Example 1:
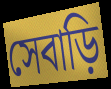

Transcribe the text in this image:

সেবাড়ি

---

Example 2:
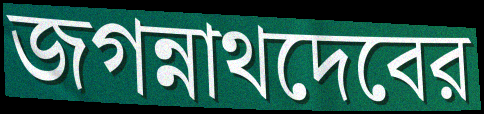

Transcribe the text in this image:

জগন্নাথদেবের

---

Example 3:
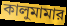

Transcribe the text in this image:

কালুমামার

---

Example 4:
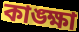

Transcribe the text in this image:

কাঙ্ক্ষা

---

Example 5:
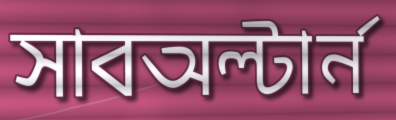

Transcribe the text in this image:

সাবঅল্টার্ন